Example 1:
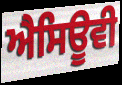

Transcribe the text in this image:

ਐਸਿਊਵੀ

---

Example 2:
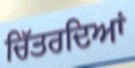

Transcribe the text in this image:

ਚਿੱਤਰਦਿਆਂ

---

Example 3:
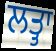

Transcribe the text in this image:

ਲਤ੍ਤਾ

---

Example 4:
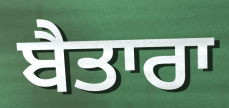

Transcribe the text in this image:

ਬੈਤਾਰਾ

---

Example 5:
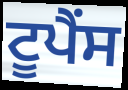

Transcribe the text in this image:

ਟੂਪੈਂਸ